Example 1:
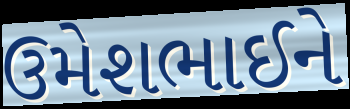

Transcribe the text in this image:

ઉમેશભાઈને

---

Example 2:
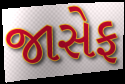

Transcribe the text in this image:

જાસેફ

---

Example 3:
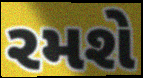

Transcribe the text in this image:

રમશે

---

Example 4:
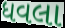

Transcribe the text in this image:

ધવલા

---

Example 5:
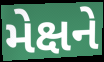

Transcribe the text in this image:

મેક્ષને